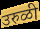
उरुळी